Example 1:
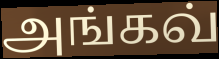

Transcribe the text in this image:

அங்கவ்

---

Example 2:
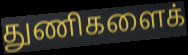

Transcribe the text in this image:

துணிகளைக்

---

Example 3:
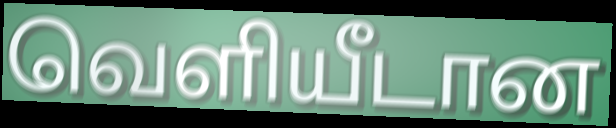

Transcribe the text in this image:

வெளியீடான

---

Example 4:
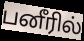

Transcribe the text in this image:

பனீரில்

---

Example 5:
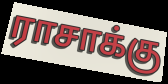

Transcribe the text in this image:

ராசாக்கு